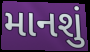
માનશું